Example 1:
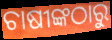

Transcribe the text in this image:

ଚାଷୀଙ୍କଠାରୁ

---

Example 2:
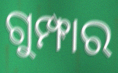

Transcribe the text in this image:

ଗୁମ୍ଫାର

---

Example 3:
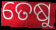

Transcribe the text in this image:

ତେଷୁ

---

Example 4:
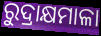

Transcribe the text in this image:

ରୁଦ୍ରାକ୍ଷମାଳା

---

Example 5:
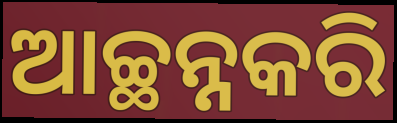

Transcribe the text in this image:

ଆଚ୍ଛନ୍ନକରି